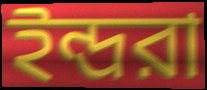
ইন্দ্ররা